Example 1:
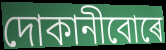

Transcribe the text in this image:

দোকানীবোৰে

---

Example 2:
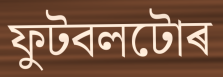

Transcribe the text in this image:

ফুটবলটোৰ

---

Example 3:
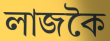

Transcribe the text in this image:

লাজকৈ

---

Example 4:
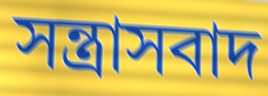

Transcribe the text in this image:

সন্ত্ৰাসবাদ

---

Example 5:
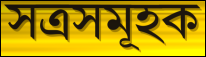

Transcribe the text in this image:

সত্ৰসমূহক